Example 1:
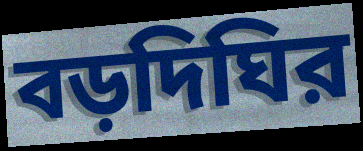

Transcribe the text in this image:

বড়দিঘির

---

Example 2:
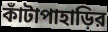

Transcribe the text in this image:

কাঁটাপাহাড়ির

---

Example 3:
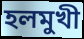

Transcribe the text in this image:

হলমুখী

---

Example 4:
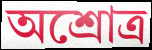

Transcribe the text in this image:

অশ্রোত্র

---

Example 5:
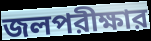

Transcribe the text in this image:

জলপরীক্ষার